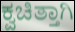
ಕ್ವಚಿತ್ತಾಗಿ